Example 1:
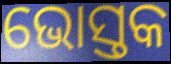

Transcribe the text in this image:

ଭୋସ୍ତକ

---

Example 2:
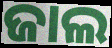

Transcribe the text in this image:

ଜାଲ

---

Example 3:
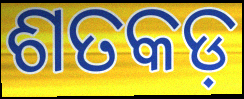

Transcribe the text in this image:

ଶତକଡ଼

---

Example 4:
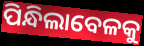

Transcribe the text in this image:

ପିନ୍ଧିଲାବେଳକୁ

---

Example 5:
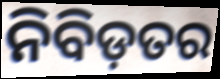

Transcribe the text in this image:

ନିବିଡ଼ତର